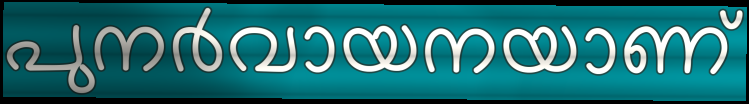
പുനർവായനയാണ്